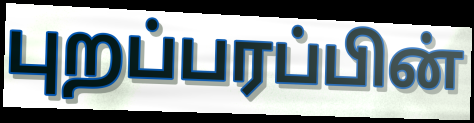
புறப்பரப்பின்